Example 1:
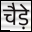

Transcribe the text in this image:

चैड़े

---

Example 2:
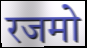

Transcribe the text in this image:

रजमो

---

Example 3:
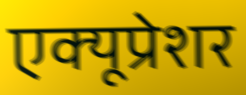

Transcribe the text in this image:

एक्यूप्रेशर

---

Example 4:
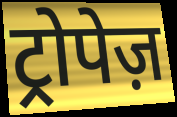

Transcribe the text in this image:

ट्रोपेज़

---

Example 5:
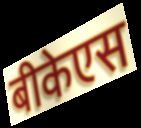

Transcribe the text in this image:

बीकेएस